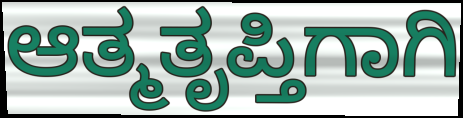
ಆತ್ಮತೃಪ್ತಿಗಾಗಿ